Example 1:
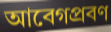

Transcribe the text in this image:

আবেগপ্রবণ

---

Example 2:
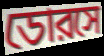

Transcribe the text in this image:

ডোরসে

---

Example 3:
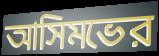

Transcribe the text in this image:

আসিমভের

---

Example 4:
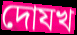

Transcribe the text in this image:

দোযখ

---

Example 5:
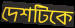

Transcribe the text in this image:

দেশটিকে